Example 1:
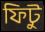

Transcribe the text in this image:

ফিটু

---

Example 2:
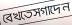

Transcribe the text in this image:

বেখতেসগাদেন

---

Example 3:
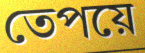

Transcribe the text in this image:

তেপয়ে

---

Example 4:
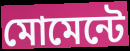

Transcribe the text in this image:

মোমেন্টে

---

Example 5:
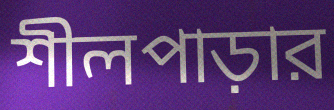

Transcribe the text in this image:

শীলপাড়ার